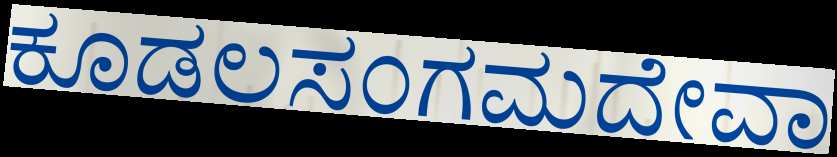
ಕೂಡಲಸಂಗಮದೇವಾ